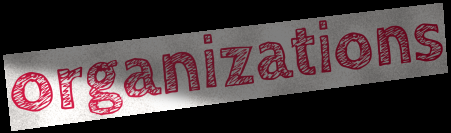
organizations